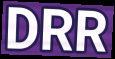
DRR